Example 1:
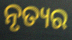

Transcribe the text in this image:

ନୃତ୍ୟର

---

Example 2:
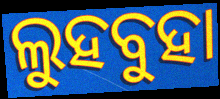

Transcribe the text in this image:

ଲୁହବୁହା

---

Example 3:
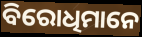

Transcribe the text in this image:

ବିରୋଧିମାନେ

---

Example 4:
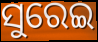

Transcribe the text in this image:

ସୁରେଇ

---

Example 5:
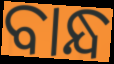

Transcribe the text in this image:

ବାନ୍ଧ